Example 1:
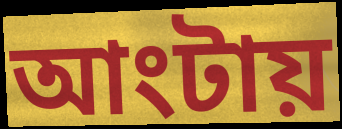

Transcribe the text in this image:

আংটায়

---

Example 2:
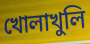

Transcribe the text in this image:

খোলাখুলি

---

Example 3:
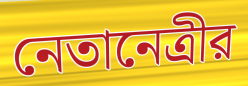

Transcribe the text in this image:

নেতানেত্রীর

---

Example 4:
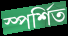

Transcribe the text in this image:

স্পর্শিত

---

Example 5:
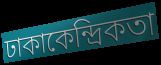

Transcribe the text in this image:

ঢাকাকেন্দ্রিকতা